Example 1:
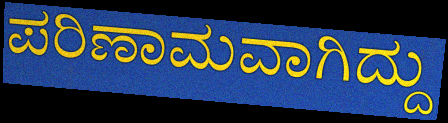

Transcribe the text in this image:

ಪರಿಣಾಮವಾಗಿದ್ದು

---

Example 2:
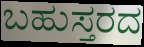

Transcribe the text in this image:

ಬಹುಸ್ತರದ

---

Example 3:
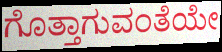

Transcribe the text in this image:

ಗೊತ್ತಾಗುವಂತೆಯೇ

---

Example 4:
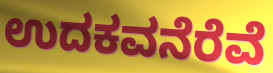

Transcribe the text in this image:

ಉದಕವನೆರೆವೆ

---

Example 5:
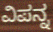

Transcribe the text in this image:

ವಿಪನ್ನ